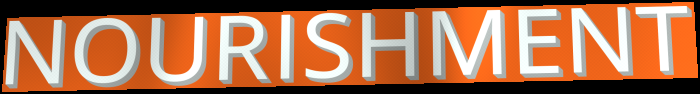
NOURISHMENT